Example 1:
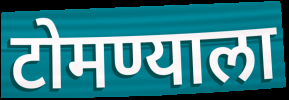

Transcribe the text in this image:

टोमण्याला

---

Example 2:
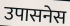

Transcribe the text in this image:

उपासनेस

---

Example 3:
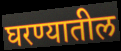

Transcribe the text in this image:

घरण्यातील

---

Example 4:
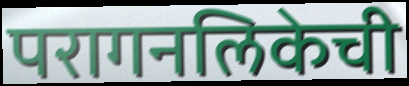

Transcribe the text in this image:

परागनलिकेची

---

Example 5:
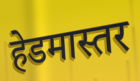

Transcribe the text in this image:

हेडमास्तर